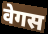
वेगस